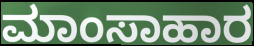
ಮಾಂಸಾಹಾರ